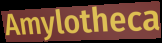
Amylotheca